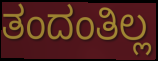
ತಂದಂತಿಲ್ಲ